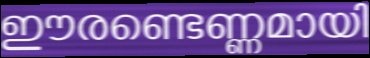
ഈരണ്ടെണ്ണമായി